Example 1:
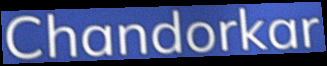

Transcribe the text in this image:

Chandorkar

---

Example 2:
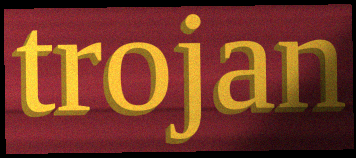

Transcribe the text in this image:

trojan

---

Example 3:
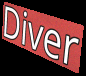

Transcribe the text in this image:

Diver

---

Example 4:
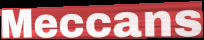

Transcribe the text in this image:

Meccans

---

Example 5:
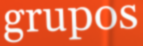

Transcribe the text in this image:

grupos